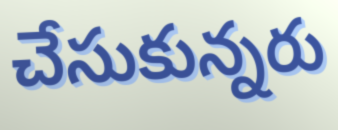
చేసుకున్నరు